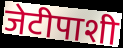
जेटीपाशी